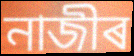
নাজীৰ